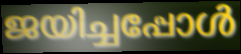
ജയിച്ചപ്പോൾ